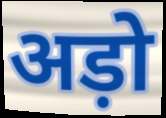
अड़ो